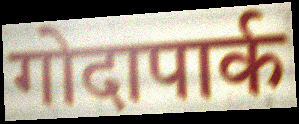
गोदापार्क